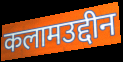
कलामउद्दीन